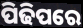
ପିଢିପରେ